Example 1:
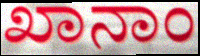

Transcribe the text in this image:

ಖಾನಾಂ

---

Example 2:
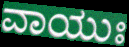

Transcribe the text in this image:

ವಾಯುಃ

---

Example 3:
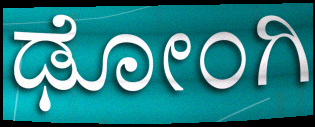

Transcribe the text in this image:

ಢೋಂಗಿ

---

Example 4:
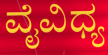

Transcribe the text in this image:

ವೈವಿಧ್ಯ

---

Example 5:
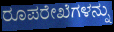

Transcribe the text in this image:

ರೂಪರೇಖೆಗಳನ್ನು